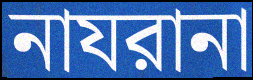
নাযরানা